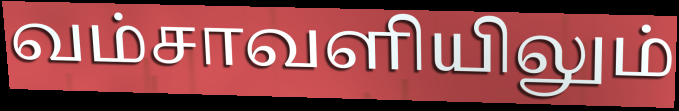
வம்சாவளியிலும்